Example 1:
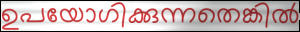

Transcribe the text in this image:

ഉപയോഗിക്കുന്നതെങ്കിൽ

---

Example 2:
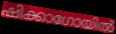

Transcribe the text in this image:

ഷിക്കാഗോയിൽ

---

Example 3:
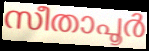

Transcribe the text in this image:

സീതാപൂർ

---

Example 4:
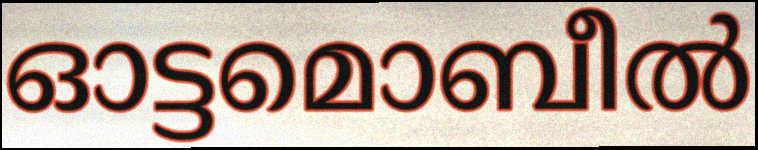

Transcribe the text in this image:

ഓട്ടമൊബീൽ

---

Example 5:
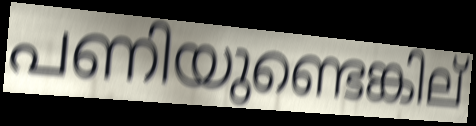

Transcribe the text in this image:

പണിയുണ്ടെങ്കില്